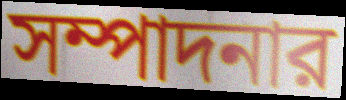
সম্পাদনার